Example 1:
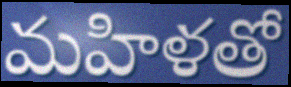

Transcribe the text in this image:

మహిళతో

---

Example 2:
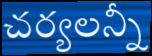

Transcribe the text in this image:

చర్యలన్నీ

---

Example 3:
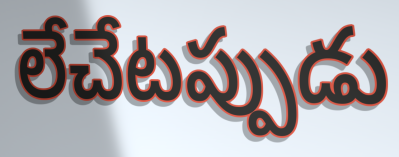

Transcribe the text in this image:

లేచేటప్పుడు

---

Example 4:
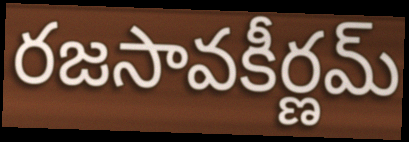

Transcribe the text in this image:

రజసావకీర్ణమ్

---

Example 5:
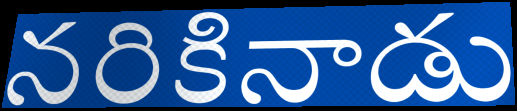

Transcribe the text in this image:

నరికినాడు